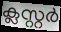
ക്ലസ്റ്റർ